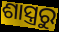
ଶାସ୍ତ୍ରରୁ